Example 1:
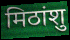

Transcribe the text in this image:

मिठांशु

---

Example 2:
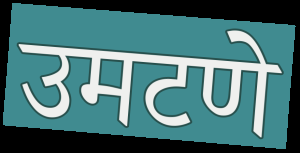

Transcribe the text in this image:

उमटणे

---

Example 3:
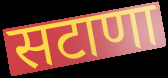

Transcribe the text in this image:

सटाणा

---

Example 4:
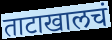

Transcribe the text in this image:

ताटाखालचं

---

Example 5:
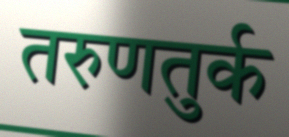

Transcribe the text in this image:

तरुणतुर्क